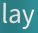
lay